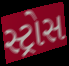
સ્ટ્રોસ